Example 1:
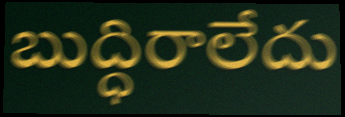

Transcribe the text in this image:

బుద్ధిరాలేదు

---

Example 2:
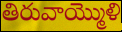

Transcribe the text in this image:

తిరువాయ్మొళి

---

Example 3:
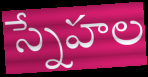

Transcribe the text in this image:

స్నేహల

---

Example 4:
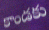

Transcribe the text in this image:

కాండకు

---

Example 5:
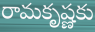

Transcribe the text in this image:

రామకృష్ణకు